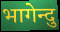
भागेन्दु